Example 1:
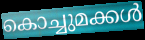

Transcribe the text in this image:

കൊച്ചുമക്കൾ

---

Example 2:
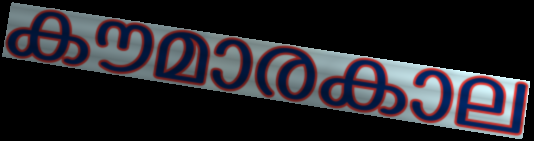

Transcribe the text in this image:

കൗമാരകാല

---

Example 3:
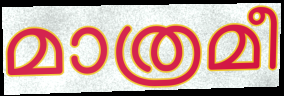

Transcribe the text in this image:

മാത്രമീ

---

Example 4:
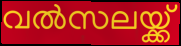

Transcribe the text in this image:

വൽസലയ്ക്ക്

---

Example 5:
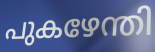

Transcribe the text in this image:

പുകഴേന്തി